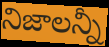
నిజాలన్నీ